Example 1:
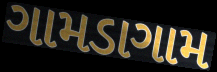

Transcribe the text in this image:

ગામડાગામ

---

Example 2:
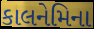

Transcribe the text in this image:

કાલનેમિના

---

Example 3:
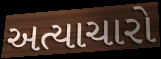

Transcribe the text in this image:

અત્યાચારો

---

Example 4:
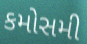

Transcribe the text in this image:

કમોસમી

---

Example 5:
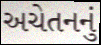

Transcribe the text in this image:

અચેતનનું